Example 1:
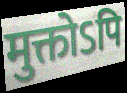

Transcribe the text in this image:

मुक्तोऽपि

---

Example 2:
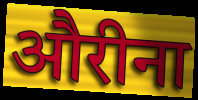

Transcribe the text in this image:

औरीना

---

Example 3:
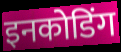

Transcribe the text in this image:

इनकोडिंग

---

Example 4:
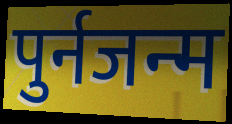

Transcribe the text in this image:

पुर्नजन्म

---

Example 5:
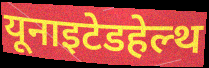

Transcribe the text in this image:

यूनाइटेडहेल्थ